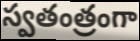
స్వతంత్రంగా